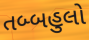
તબ્બહુલો